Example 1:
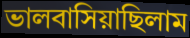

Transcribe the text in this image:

ভালবাসিয়াছিলাম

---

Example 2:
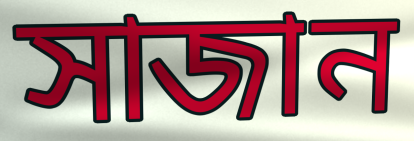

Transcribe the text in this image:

সাজান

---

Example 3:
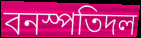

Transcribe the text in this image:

বনস্পতিদল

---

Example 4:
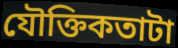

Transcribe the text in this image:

যৌক্তিকতাটা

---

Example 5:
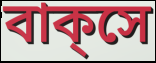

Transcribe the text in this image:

বাক্‌সে